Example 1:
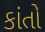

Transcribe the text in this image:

કાંતો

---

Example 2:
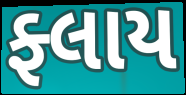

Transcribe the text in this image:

ફ્લાય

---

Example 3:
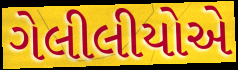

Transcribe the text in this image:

ગેલીલીયોએ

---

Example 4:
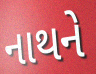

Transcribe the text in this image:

નાથને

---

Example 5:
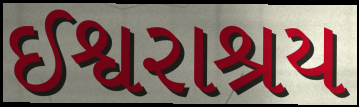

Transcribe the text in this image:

ઈશ્વરાશ્રય